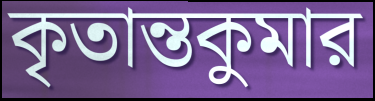
কৃতান্তকুমার